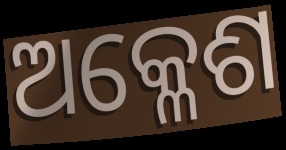
ଅକ୍ଳେଶ